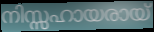
നിസ്സഹായരായ്